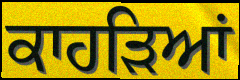
ਕਾਹੜਿਆਂ